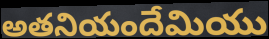
అతనియందేమియు